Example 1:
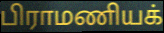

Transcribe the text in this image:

பிராமணியக்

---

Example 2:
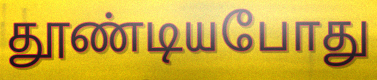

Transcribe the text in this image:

தூண்டியபோது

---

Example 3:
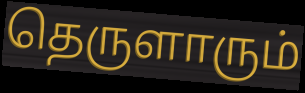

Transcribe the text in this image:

தெருளாரும்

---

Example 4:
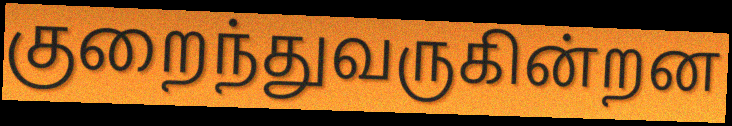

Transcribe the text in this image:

குறைந்துவருகின்றன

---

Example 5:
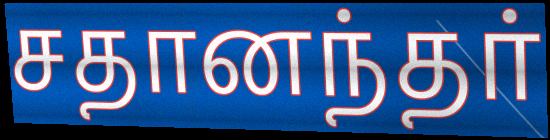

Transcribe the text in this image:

சதானந்தர்